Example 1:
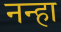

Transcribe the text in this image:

नन्हा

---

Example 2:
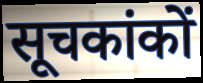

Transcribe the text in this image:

सूचकांकों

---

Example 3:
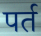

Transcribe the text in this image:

पर्त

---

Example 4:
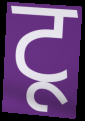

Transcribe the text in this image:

टू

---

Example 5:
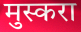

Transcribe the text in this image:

मुस्करा